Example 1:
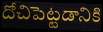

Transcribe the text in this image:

దోచిపెట్టడానికి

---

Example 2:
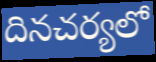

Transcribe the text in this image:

దినచర్యలో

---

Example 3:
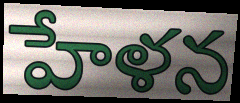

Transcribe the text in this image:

హేళన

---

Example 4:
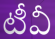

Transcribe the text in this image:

టీవీ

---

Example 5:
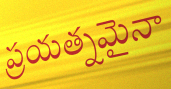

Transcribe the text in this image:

ప్రయత్నమైనా